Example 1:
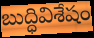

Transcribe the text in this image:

బుద్ధివిశేషం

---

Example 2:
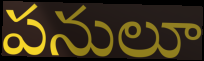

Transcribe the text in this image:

పనులూ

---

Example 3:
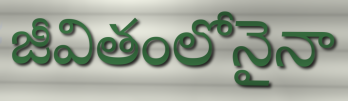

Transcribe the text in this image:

జీవితంలోనైనా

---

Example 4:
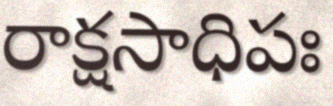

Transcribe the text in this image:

రాక్షసాధిపః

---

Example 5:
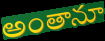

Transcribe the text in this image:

అంతానూ